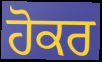
ਹੋਕਰ